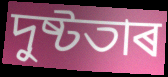
দুষ্টতাৰ